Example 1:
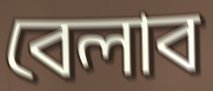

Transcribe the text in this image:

বেলাব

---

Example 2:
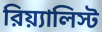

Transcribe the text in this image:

রিয়্যালিস্ট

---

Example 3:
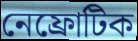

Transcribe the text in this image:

নেফ্রোটিক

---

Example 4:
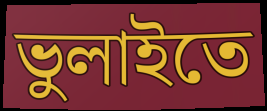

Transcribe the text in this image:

ভুলাইতে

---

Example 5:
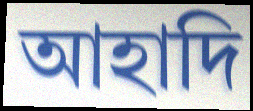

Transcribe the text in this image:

আহাদি